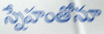
స్నేహంతోనూ